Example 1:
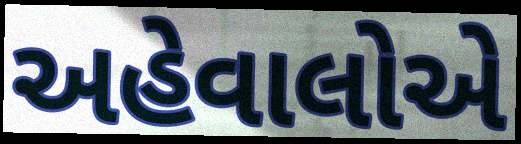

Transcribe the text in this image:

અહેવાલોએ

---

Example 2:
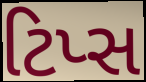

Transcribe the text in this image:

ટિપ્સ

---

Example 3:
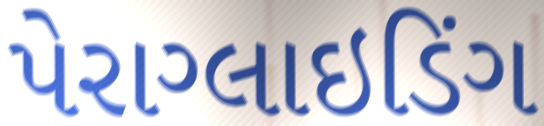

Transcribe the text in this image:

પેરાગ્લાઇડિંગ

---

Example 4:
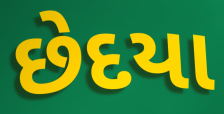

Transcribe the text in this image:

છેદયા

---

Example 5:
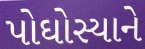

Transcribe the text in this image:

પોઘોસ્યાને